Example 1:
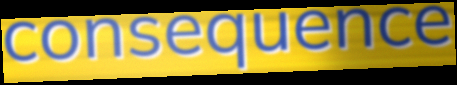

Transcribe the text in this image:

consequence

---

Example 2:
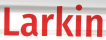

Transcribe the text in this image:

Larkin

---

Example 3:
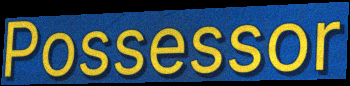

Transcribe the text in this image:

Possessor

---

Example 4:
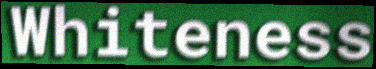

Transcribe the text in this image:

Whiteness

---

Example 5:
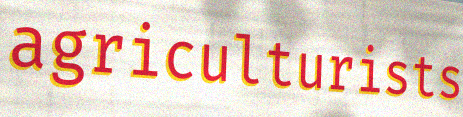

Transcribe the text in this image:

agriculturists